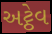
અટ્ઠેવ